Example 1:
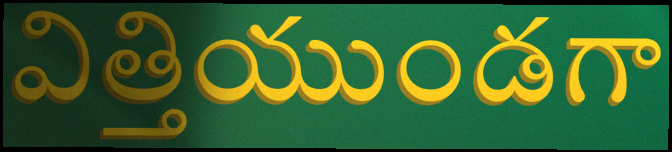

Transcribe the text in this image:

విత్తియుండగా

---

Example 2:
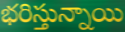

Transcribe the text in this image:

భరిస్తున్నాయి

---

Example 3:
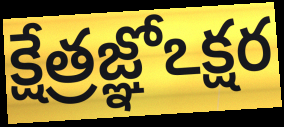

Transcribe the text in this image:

క్షేత్రజ్ఞోఽక్షర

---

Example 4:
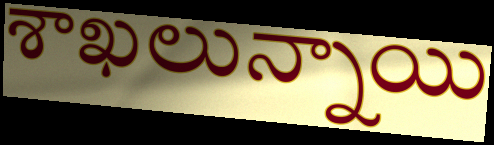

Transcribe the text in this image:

శాఖలున్నాయి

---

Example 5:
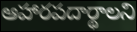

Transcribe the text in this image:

ఆహారపదార్థాలని